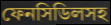
ফেনসিডিলসহ